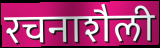
रचनाशैली